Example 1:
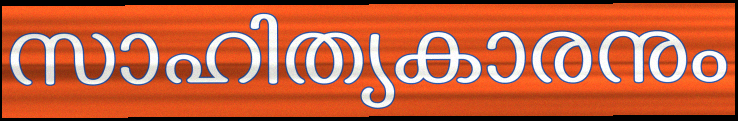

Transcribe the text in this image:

സാഹിത്യകാരനും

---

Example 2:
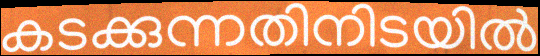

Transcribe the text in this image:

കടക്കുന്നതിനിടയിൽ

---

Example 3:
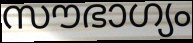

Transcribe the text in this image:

സൗഭാഗ്യം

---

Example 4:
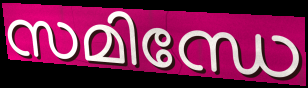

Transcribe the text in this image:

സമിന്ധേ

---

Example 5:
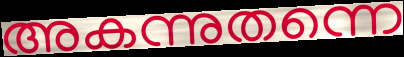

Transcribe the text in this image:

അകന്നുതന്നെ